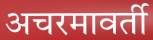
अचरमावर्ती